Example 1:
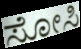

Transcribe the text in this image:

ಸೋಸಿ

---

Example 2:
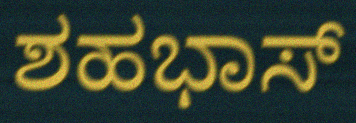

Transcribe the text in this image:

ಶಹಭಾಸ್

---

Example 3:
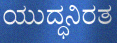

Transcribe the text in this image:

ಯುದ್ಧನಿರತ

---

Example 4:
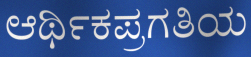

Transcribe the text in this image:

ಆರ್ಥಿಕಪ್ರಗತಿಯ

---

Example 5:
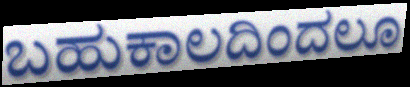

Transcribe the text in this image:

ಬಹುಕಾಲದಿಂದಲೂ